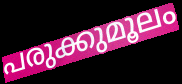
പരുക്കുമൂലം